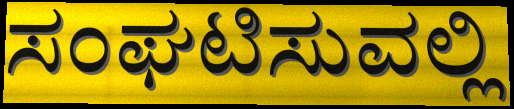
ಸಂಘಟಿಸುವಲ್ಲಿ